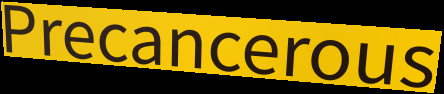
Precancerous